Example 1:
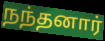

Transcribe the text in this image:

நந்தனார்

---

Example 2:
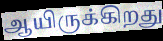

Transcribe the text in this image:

ஆயிருக்கிறது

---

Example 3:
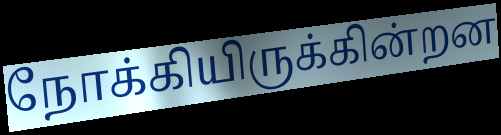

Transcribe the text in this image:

நோக்கியிருக்கின்றன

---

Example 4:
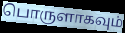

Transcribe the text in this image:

பொருளாகவும்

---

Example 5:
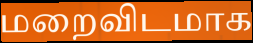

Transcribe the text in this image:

மறைவிடமாக